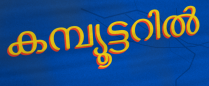
കമ്പ്യൂട്ടറിൽ